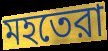
মহতেরা